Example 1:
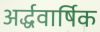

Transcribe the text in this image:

अर्द्धवार्षिक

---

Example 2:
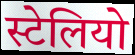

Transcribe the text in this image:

स्टेलियो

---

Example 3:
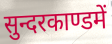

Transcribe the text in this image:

सुन्दरकाण्डमें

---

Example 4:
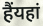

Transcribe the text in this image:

हैंयहां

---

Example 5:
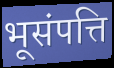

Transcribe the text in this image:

भूसंपत्ति